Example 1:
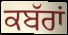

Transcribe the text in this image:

ਕਬੱਰਾਂ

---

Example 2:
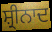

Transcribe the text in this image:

ਸ਼੍ਰੀਨਾਦ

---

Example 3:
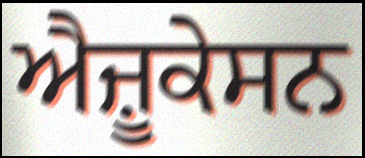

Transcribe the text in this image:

ਐਜ਼ੂਕੇਸਨ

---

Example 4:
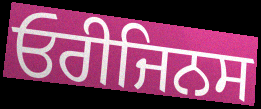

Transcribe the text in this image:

ਓਰੀਜਿਨਸ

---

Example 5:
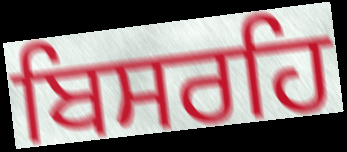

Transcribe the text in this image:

ਬਿਸਰਹਿ